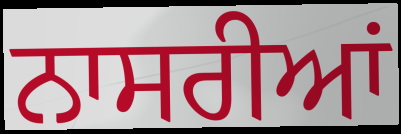
ਨਾਸਰੀਆਂ